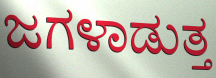
ಜಗಳಾಡುತ್ತ